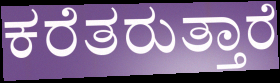
ಕರೆತರುತ್ತಾರೆ